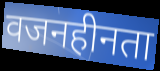
वजनहीनता